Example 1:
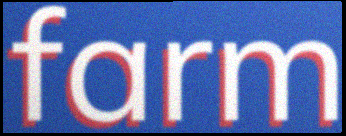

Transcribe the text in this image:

farm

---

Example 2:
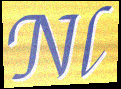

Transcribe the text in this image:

Nl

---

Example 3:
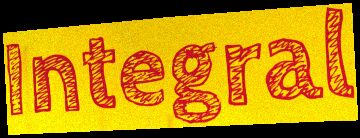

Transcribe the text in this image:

Integral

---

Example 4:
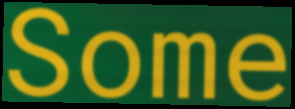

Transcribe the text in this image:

Some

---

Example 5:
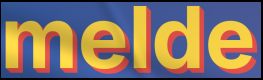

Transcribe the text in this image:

melde